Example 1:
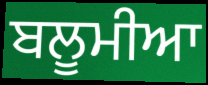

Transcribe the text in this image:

ਬਲੂਮੀਆ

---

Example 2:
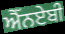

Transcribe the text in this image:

ਐੱਨਏਬੀ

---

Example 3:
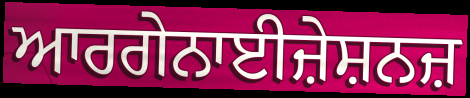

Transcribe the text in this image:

ਆਰਗੇਨਾਈਜ਼ੇਸ਼ਨਜ਼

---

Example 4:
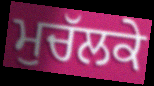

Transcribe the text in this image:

ਮੁਚੱਲਕੇ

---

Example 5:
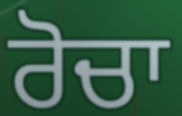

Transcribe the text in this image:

ਰੋਚਾ